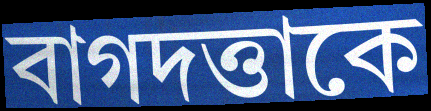
বাগদত্তাকে